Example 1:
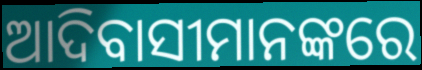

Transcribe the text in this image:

ଆଦିବାସୀମାନଙ୍କରେ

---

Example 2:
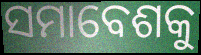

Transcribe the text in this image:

ସମାବେଶକୁ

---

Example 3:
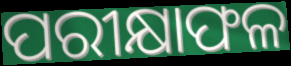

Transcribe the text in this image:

ପରୀକ୍ଷାଫଳ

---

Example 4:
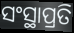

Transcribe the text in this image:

ସଂସ୍ଥାପ୍ରତି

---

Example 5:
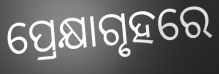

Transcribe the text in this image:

ପ୍ରେକ୍ଷାଗୃହରେ